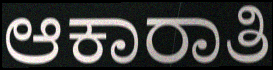
ಆಕಾರಾತಿ